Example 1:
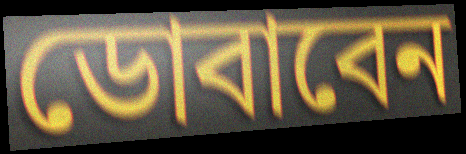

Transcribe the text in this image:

ডোবাবেন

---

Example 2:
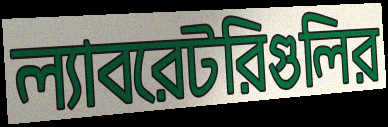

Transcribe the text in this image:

ল্যাবরেটরিগুলির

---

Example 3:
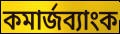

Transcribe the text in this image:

কমার্জব্যাংক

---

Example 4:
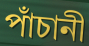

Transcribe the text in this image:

পাঁচানী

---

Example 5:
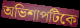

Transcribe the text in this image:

অভিশাপটিকে